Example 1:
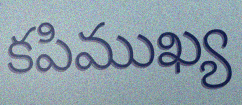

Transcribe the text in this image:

కపిముఖ్య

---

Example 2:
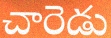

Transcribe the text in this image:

చారెడు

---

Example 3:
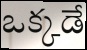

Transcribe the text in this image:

ఒక్కడే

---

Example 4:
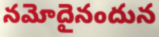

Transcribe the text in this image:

నమోదైనందున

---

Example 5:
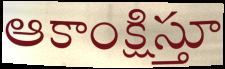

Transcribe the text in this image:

ఆకాంక్షిస్తూ